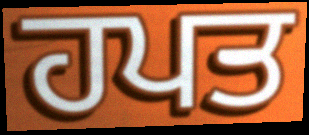
ਹਪਤ